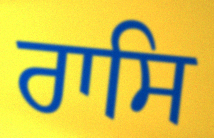
ਰਾਸਿ